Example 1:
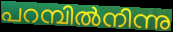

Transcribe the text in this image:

പറമ്പിൽനിന്നു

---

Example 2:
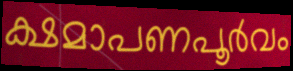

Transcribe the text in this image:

ക്ഷമാപണപൂർവം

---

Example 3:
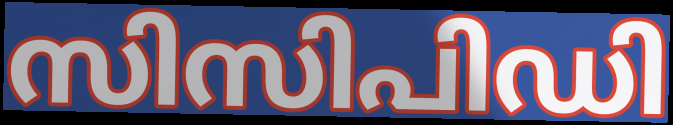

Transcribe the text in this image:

സിസിപിഡി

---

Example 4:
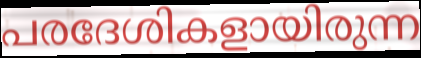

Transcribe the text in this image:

പരദേശികളായിരുന്ന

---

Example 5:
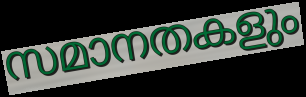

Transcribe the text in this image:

സമാനതകളും